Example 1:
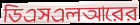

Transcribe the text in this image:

ডিএসএলআরের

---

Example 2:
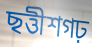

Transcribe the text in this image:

ছত্তীশগঢ়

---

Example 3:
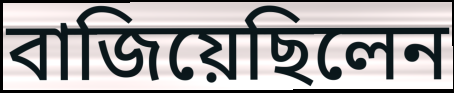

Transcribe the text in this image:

বাজিয়েছিলেন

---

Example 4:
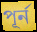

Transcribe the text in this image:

পূর্ন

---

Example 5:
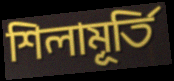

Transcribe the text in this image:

শিলামূর্তি